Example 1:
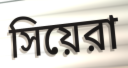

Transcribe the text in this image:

সিয়েরা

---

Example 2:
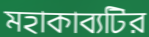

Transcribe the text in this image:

মহাকাব্যটির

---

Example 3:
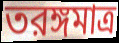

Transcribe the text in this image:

তরঙ্গমাত্র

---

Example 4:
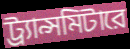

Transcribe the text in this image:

ট্র্যান্সমিটারে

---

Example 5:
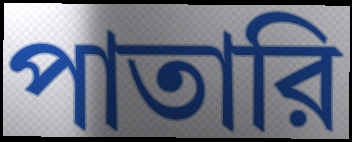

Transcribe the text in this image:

পাতারি